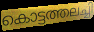
കൊട്ടത്തലച്ചി